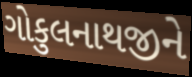
ગોકુલનાથજીને